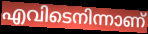
എവിടെനിന്നാണ്